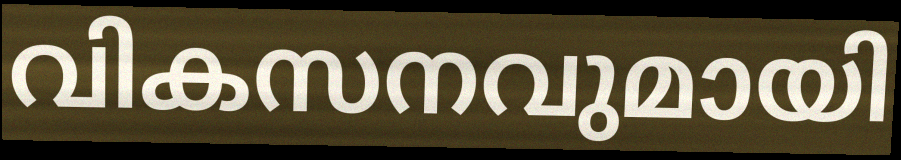
വികസനവുമായി